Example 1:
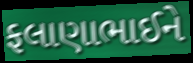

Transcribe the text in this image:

ફલાણાભાઈને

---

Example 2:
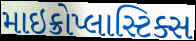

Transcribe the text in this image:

માઇક્રોપ્લાસ્ટિક્સ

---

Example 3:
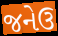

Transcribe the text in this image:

જનેઉ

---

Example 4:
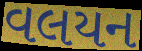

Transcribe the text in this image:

વલયન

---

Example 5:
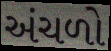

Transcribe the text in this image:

અંચળો